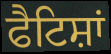
ਫੈਟਿਸ਼ਾਂ